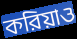
করিয়াও